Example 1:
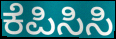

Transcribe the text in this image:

ಕೆಪಿಸಿಸಿ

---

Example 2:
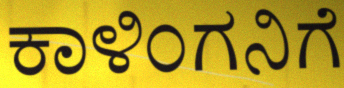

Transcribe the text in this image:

ಕಾಳಿಂಗನಿಗೆ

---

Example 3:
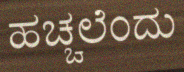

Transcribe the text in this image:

ಹಚ್ಚಲೆಂದು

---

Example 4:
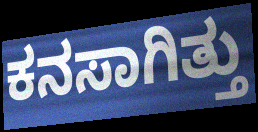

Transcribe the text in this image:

ಕನಸಾಗಿತ್ತು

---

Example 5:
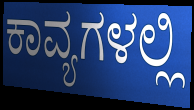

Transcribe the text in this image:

ಕಾವ್ಯಗಳಲ್ಲಿ